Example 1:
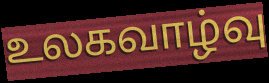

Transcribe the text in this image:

உலகவாழ்வு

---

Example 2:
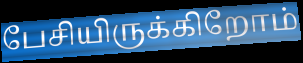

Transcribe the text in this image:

பேசியிருக்கிறோம்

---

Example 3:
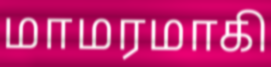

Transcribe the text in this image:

மாமரமாகி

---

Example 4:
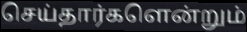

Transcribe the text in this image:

செய்தார்களென்றும்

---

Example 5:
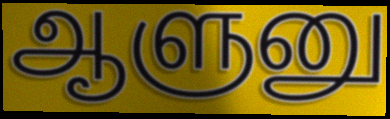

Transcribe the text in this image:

ஆளுனு